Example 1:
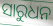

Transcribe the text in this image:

ସାରୁଧନ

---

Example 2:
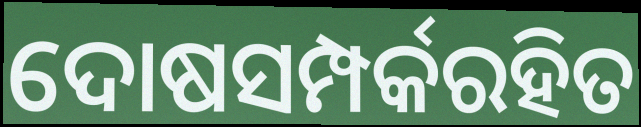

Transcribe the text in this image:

ଦୋଷସମ୍ପର୍କରହିତ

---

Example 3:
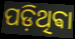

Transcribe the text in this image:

ପଡ଼ିଥିଵା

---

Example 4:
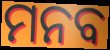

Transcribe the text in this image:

ମନବ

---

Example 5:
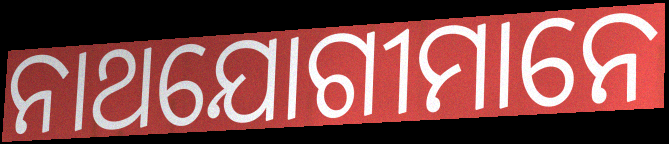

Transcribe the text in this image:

ନାଥଯୋଗୀମାନେ